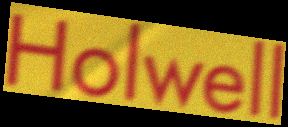
Holwell